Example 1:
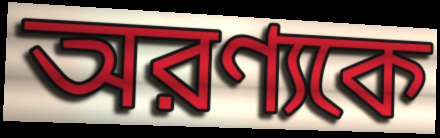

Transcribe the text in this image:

অরণ্যকে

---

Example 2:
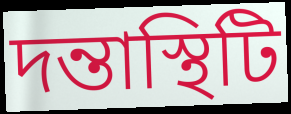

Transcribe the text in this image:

দন্তাস্থিটি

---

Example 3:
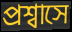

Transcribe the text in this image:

প্রশ্বাসে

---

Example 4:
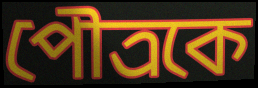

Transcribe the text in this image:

পৌত্রকে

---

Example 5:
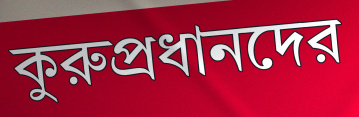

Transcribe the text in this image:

কুরুপ্রধানদের